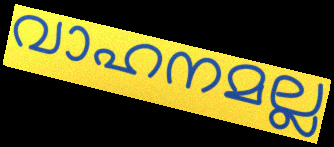
വാഹനമല്ല